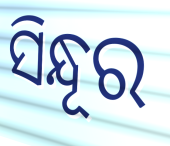
ସିନ୍ଧୂର